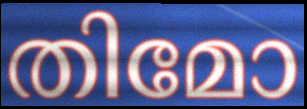
തിമോ